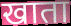
खाता